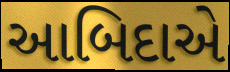
આબિદાએ